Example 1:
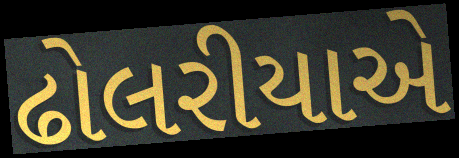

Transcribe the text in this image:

ઢોલરીયાએ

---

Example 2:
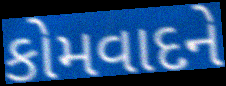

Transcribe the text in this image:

કોમવાદને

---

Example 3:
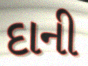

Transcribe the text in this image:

દાની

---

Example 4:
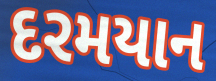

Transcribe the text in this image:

દરમયાન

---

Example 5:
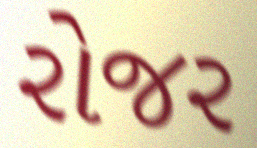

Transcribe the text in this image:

રોજર